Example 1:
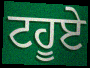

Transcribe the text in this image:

ਟਹੂਏ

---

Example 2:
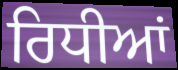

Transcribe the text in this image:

ਰਿਧੀਆਂ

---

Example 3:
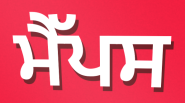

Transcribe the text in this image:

ਮੈੱਪਸ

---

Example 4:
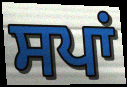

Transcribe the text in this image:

ਸਪਾਂ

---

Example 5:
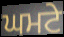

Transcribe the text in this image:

ਘਮਟੇ